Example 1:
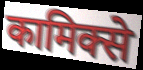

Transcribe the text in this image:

कामिक्से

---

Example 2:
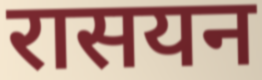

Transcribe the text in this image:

रासयन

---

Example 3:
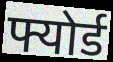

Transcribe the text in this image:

फ्योर्ड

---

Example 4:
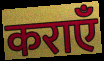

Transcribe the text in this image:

कराएँ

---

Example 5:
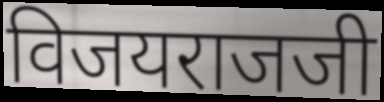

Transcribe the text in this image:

विजयराजजी